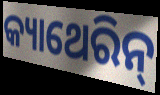
କ୍ୟାଥେରିନ୍